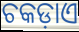
ଚକଡ଼ାଏ